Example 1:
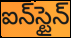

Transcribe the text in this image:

ఐన్‌స్టైన్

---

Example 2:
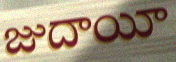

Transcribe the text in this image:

జుదాయీ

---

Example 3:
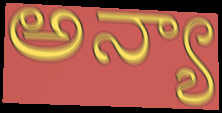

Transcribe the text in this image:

అన్యా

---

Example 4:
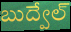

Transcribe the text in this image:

బుద్వేల్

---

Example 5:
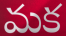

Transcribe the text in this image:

మక